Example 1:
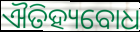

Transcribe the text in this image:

ଐତିହ୍ୟବୋଧ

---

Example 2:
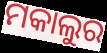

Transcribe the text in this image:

ମକାଲୁର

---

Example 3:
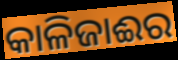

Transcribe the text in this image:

କାଳିଜାଈର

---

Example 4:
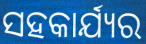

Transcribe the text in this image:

ସହକାର୍ଯ୍ୟର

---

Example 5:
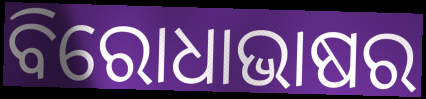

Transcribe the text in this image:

ବିରୋଧାଭାଷର